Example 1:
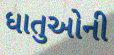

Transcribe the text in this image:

ધાતુઓની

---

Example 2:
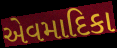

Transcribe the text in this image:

એવમાદિકા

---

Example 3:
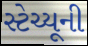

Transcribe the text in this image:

સ્ટેચ્યૂની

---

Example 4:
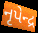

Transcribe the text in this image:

નૃપેન્દ્ર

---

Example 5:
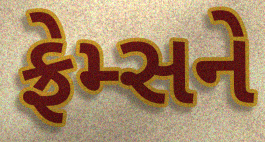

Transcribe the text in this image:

ફ્રેમ્સને